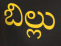
బిల్లు